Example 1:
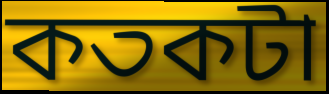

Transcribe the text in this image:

কতকটা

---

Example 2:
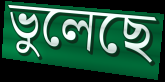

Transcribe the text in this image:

ভুলেছে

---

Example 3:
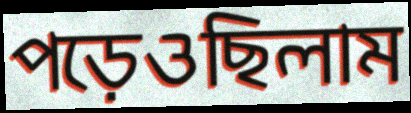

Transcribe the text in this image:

পড়েওছিলাম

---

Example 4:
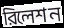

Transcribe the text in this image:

রিলেশন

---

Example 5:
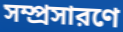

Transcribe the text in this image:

সম্প্রসারণে